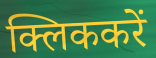
क्लिककरें